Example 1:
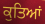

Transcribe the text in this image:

ਕੁਤਿਆਂ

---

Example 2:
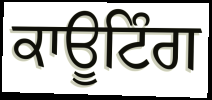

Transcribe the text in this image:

ਕਾਊਟਿੰਗ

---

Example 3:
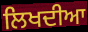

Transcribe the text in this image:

ਲਿਖਦੀਆ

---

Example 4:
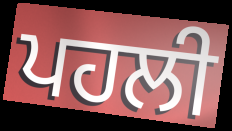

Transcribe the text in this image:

ਪਹਲੀ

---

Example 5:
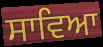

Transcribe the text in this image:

ਸਾਵਿਆ